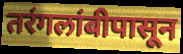
तरंगलांबीपासून